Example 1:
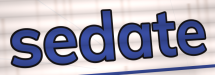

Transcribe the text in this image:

sedate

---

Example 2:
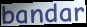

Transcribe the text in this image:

bandar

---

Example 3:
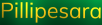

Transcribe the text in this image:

Pillipesara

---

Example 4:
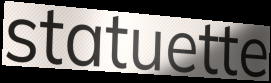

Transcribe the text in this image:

statuette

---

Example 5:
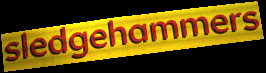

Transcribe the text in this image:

sledgehammers